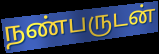
நண்பருடன்